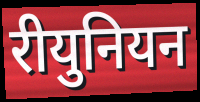
रीयुनियन